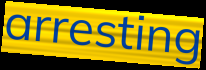
arresting